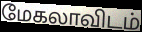
மேகலாவிடம்